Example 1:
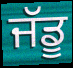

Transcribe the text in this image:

ਜੱਡੂ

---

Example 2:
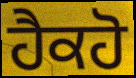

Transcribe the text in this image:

ਹੈਕਹੋ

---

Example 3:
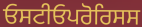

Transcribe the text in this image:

ਓਸਟੀਓਪਰੋਰਿਸਸ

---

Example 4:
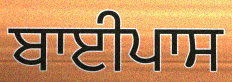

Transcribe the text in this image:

ਬਾਈਪਾਸ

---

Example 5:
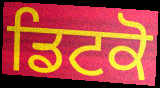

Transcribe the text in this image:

ਡਿਟਕੋ